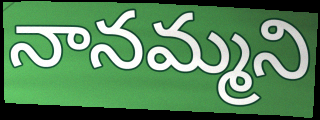
నానమ్మని